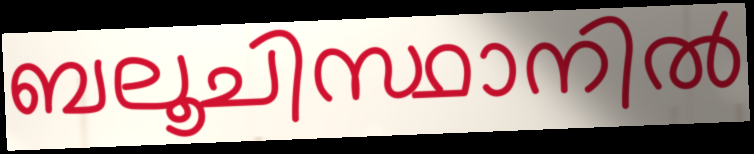
ബലൂചിസ്ഥാനിൽ